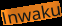
Inwaku